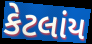
કેટલાંય